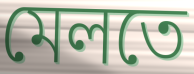
মেলতে